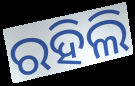
ରହିଲି